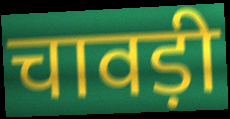
चावड़ी